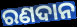
ରଣଦାନ